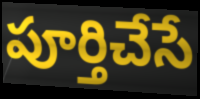
పూర్తిచేసే